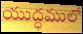
యుద్ధములో